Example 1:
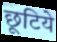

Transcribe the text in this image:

छूटिये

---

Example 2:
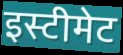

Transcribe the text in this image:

इस्टीमेट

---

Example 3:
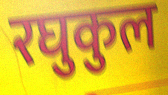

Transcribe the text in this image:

रघुकुल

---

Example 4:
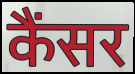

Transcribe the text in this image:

कैंसर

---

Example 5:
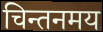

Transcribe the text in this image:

चिन्तनमय